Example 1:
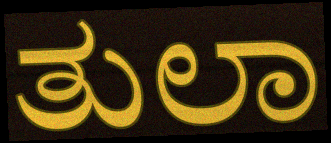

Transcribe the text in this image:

ತುಲಾ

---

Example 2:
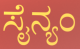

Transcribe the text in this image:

ಸೈನ್ಯಂ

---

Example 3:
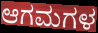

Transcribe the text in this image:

ಆಗಮಗಳ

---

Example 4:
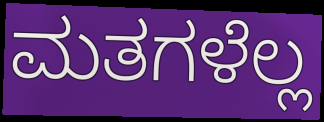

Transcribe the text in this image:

ಮತಗಳೆಲ್ಲ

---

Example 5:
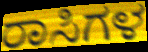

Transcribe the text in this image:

ರಾಸಿಗಳ